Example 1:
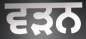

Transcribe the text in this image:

ਵਡ਼ਨ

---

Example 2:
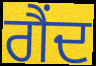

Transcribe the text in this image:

ਗੈਂਦ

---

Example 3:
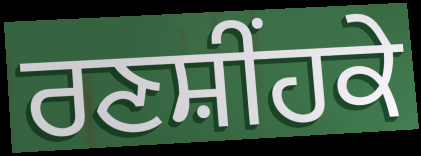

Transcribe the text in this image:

ਰਣਸ਼ੀਂਹਕੇ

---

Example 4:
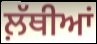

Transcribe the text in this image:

ਲ਼ੱਥੀਆਂ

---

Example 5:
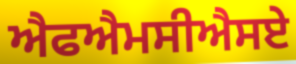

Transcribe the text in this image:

ਐਫਐਮਸੀਐਸਏ